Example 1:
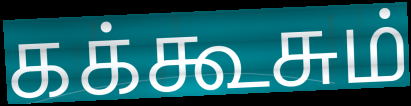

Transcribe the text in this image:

கக்கூசும்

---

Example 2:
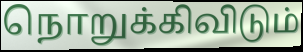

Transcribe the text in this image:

நொறுக்கிவிடும்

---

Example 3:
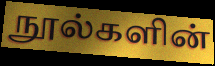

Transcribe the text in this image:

நூல்களின்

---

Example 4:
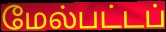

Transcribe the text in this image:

மேல்பட்டப்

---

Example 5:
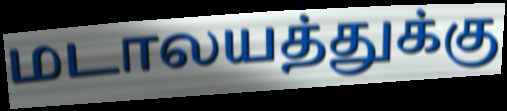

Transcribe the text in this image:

மடாலயத்துக்கு